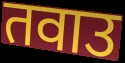
तवाउ